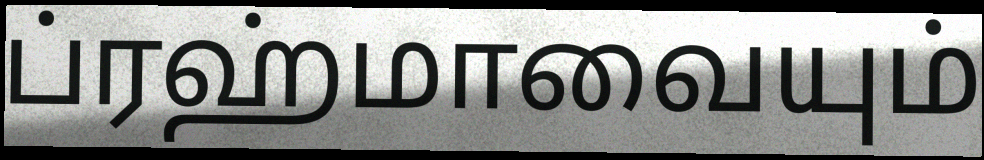
ப்ரஹ்மாவையும்